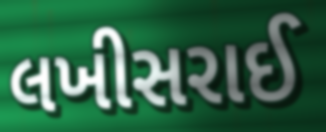
લખીસરાઈ